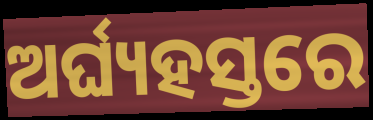
ଅର୍ଘ୍ୟହସ୍ତରେ